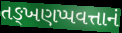
તઙ્ખણપ્પવત્તાનં